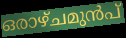
ഒരാഴ്ചമുൻപ്